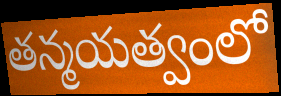
తన్మయత్వంలో